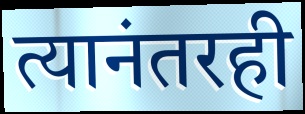
त्यानंतरही